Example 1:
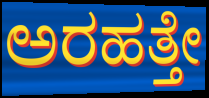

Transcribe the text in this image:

ಅರಹತ್ತೇ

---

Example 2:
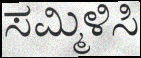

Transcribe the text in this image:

ಸಮ್ಮಿಳಿಸಿ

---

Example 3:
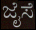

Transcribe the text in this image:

ಜೈಸೆ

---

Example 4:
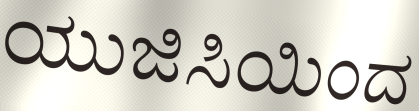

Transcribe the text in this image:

ಯುಜಿಸಿಯಿಂದ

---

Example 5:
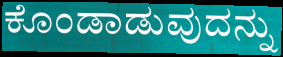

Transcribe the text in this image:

ಕೊಂಡಾಡುವುದನ್ನು